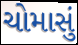
ચોમાસું